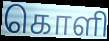
கொளி